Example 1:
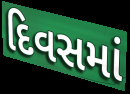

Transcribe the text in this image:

દિવસમાં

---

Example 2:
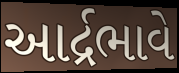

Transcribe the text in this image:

આર્દ્રભાવે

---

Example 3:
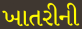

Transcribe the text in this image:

ખાતરીની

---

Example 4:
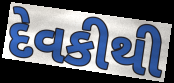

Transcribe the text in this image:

દેવકીથી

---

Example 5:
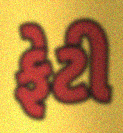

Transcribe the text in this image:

ફેટી